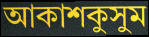
আকাশকুসুম